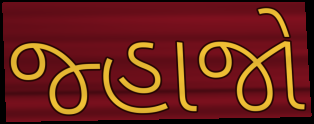
જ્હાજો